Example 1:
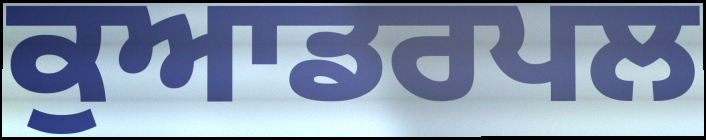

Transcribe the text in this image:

ਕੁਆਡਰਪਲ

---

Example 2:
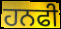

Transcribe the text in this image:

ਹਨਫੀ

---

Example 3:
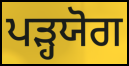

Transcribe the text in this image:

ਪੜ੍ਹਯੋਗ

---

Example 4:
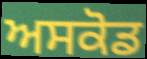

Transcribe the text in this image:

ਅਸਕੋਡ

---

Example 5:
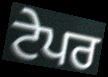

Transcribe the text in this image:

ਟੇਪਰ